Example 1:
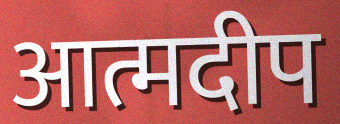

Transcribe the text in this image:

आत्मदीप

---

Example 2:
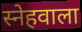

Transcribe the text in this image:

स्नेहवाला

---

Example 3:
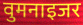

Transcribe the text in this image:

वुमनाइजर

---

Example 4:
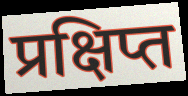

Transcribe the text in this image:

प्रक्षिप्त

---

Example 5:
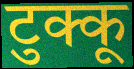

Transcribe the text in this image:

टुक्कू